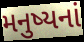
મનુષ્યનાં